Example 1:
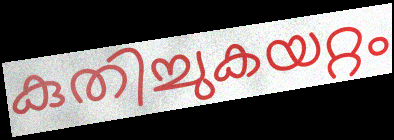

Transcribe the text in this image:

കുതിച്ചുകയറ്റം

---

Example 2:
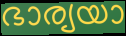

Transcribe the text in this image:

ഭാര്യയാ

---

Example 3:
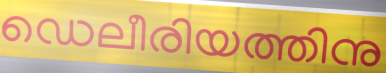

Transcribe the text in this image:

ഡെലീരിയത്തിനു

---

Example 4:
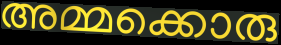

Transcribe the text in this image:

അമ്മക്കൊരു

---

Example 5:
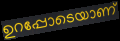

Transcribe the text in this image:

ഉറപ്പോടെയാണ്